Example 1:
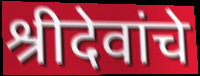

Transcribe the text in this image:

श्रीदेवांचे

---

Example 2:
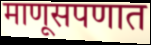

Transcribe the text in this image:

माणूसपणात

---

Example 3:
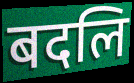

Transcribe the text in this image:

बदलि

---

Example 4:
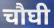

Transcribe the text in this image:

चौघी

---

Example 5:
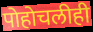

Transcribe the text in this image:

पोहोचलीही